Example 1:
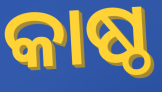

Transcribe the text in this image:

କାଷ୍ଠ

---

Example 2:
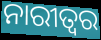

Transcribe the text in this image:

ନାରୀତ୍ଵର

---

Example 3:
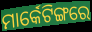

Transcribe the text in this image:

ମାର୍କେଟିଙ୍ଗରେ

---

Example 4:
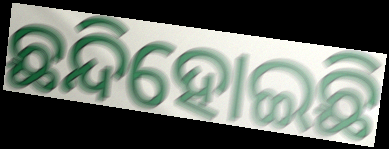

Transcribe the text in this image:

ଛନ୍ଦିହୋଇଛି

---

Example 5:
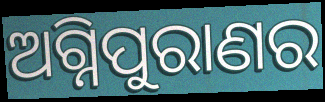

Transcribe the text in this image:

ଅଗ୍ନିପୁରାଣର